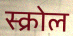
स्क्रोल